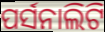
ପର୍ସନାଲିଟି